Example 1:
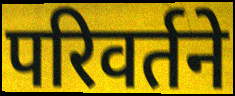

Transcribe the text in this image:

परिवर्तने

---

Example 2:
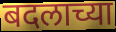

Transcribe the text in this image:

बदलाच्या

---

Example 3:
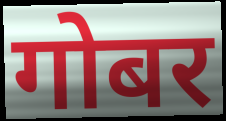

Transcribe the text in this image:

गोबर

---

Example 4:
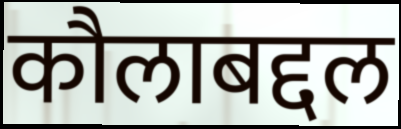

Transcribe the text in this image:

कौलाबद्दल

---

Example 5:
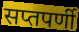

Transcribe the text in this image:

सप्तपर्णी